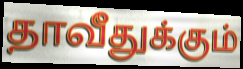
தாவீதுக்கும்